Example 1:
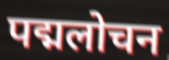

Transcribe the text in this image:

पद्मलोचन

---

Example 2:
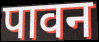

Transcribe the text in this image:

पावन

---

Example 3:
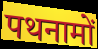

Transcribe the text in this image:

पथनामों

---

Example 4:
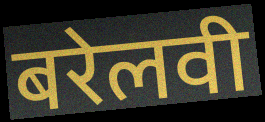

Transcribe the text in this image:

बरेलवी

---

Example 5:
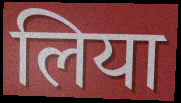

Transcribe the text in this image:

लिया